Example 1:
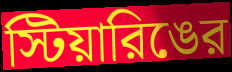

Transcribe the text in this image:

স্টিয়ারিঙের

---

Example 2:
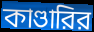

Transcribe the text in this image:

কাণ্ডারির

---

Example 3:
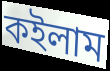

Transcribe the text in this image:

কইলাম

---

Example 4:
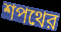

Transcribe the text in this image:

শপথের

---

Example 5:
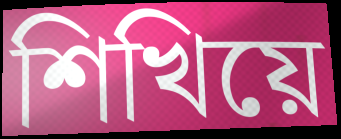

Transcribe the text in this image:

শিখিয়ে